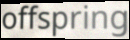
offspring